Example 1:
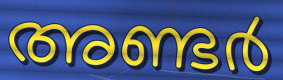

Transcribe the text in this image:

അണ്ടർ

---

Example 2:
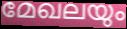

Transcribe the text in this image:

മേഖലയും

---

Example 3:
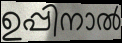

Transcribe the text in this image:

ഉപ്പിനാൽ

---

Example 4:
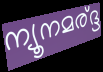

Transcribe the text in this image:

ന്യൂനമര്ദ്ദ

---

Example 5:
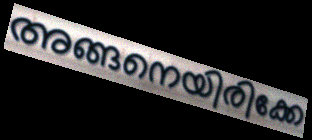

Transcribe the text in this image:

അങ്ങനെയിരിക്കേ